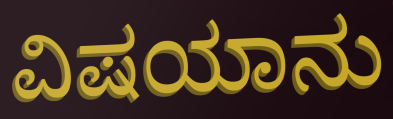
ವಿಷಯಾನು